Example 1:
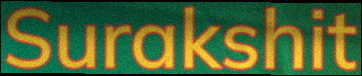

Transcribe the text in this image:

Surakshit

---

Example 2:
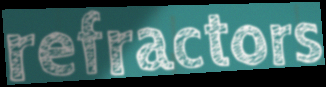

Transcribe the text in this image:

refractors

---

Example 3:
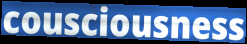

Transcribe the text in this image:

cousciousness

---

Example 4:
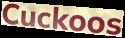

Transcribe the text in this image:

Cuckoos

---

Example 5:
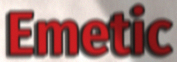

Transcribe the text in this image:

Emetic